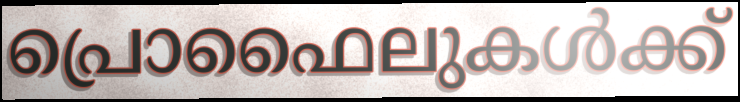
പ്രൊഫൈലുകൾക്ക്